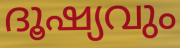
ദൂഷ്യവും